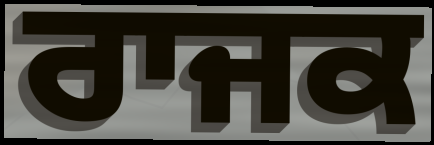
ਰਾਜਕ